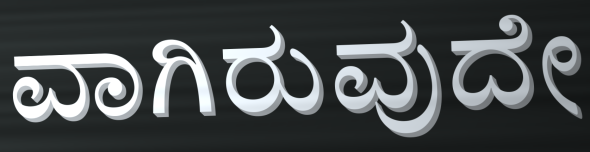
ವಾಗಿರುವುದೇ